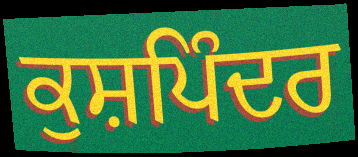
ਕੁਸ਼ਪਿੰਦਰ